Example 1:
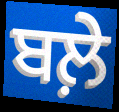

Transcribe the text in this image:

ਬਲ਼ੇ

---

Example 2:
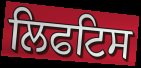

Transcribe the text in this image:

ਲਿਫਟਿਸ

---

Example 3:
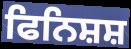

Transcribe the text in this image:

ਫਿਨਿਸ਼ਸ਼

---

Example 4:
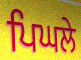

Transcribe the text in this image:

ਪਿਘਲੇ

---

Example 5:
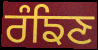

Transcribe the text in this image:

ਰੰਙਿਣ